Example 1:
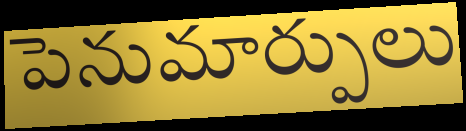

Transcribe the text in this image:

పెనుమార్పులు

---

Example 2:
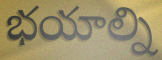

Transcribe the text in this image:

భయాల్ని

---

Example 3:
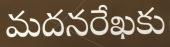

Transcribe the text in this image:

మదనరేఖకు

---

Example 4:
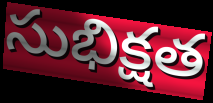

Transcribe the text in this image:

సుభిక్షత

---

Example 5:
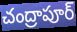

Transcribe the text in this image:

చంద్రాపూర్